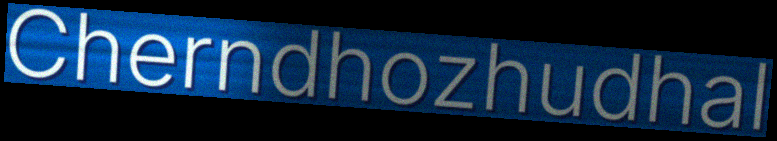
Cherndhozhudhal